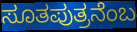
ಸೂತಪುತ್ರನೆಂಬ